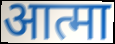
आत्मा